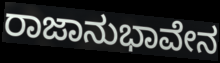
ರಾಜಾನುಭಾವೇನ